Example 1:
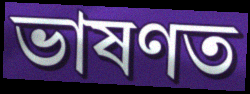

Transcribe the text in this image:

ভাষণত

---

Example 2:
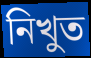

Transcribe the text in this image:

নিখুত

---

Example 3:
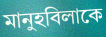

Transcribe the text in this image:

মানুহবিলাকে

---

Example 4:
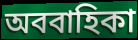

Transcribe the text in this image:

অববাহিকা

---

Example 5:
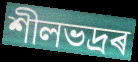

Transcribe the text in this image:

শীলভদ্ৰৰ